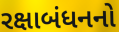
રક્ષાબંધનનો